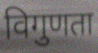
विगुणता